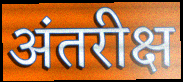
अंतरीक्ष